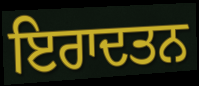
ਇਰਾਦਤਨ